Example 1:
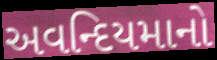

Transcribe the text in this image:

અવન્દિયમાનો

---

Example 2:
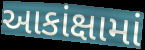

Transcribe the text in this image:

આકાંક્ષામાં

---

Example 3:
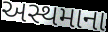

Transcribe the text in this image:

અસ્થમાના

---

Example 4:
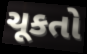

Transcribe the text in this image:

ચૂકતો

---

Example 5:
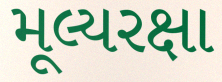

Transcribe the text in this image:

મૂલ્યરક્ષા